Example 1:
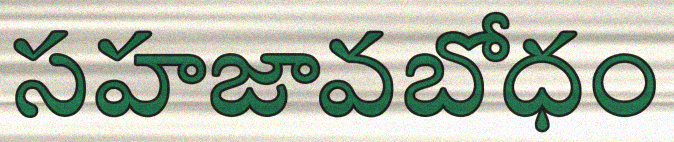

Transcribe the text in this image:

సహజావబోధం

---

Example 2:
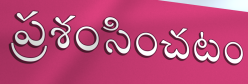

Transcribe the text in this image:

ప్రశంసించటం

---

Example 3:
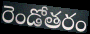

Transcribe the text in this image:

రెండోతరం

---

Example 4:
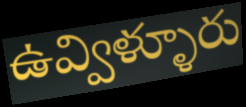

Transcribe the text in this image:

ఉవ్విళ్ళూరు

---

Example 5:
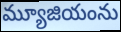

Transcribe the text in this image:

మ్యూజియంను